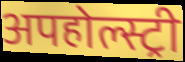
अपहोल्स्ट्री